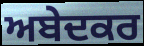
ਅਬੇਦਕਰ